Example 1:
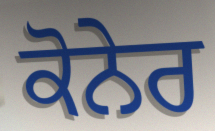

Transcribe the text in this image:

ਕੋਨੇਰ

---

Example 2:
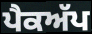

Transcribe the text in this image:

ਪੈਕਅੱਪ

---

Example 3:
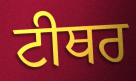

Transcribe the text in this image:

ਟੀਥਰ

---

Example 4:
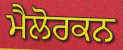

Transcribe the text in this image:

ਮੈਲੋਰਕਨ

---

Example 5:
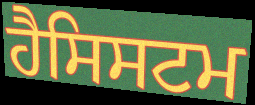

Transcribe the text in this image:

ਹੈਸਿਸਟਮ